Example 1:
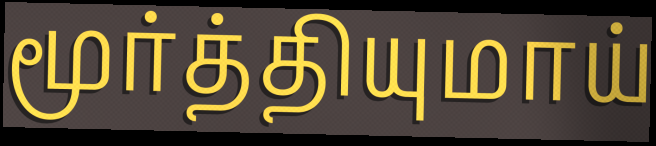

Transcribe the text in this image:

மூர்த்தியுமாய்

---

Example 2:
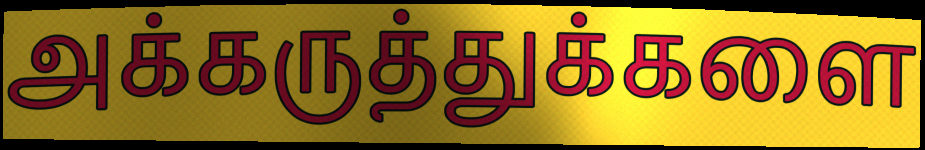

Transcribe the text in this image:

அக்கருத்துக்களை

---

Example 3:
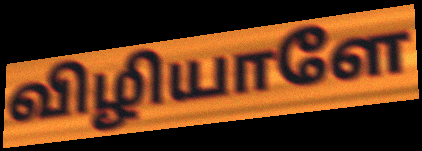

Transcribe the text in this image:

விழியாளே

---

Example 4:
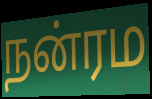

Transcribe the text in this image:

நன்ரம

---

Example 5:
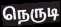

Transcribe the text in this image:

நெருடி